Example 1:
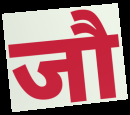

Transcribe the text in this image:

जौ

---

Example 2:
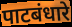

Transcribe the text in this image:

पाटबंधारे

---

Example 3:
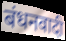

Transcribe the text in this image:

बंधनवादी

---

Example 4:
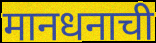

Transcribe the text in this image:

मानधनाची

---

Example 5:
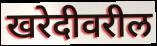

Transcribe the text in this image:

खरेदीवरील